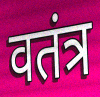
वतंत्र